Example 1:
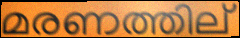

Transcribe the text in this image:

മരണത്തില്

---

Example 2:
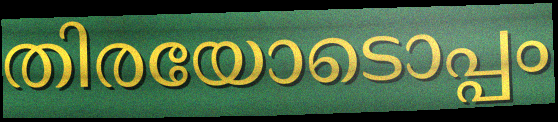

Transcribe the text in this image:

തിരയോടൊപ്പം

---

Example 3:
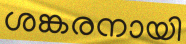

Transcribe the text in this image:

ശങ്കരനായി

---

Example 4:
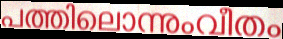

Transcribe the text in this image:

പത്തിലൊന്നുംവീതം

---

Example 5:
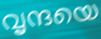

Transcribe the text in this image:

വൃന്ദയെ